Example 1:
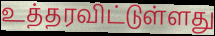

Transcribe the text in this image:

உத்தரவிட்டுள்ளது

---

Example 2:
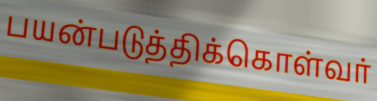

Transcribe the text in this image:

பயன்படுத்திக்கொள்வர்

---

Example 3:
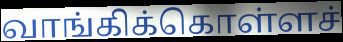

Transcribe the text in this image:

வாங்கிக்கொள்ளச்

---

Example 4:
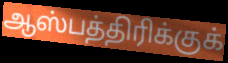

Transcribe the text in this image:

ஆஸ்பத்திரிக்குக்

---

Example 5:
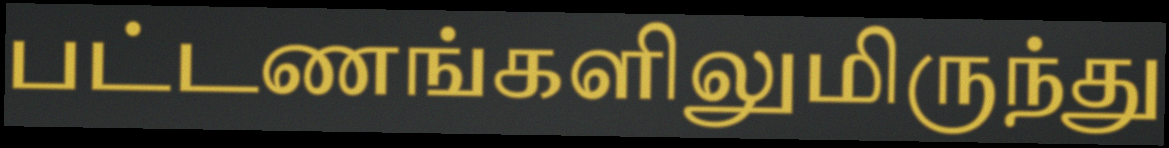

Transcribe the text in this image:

பட்டணங்களிலுமிருந்து